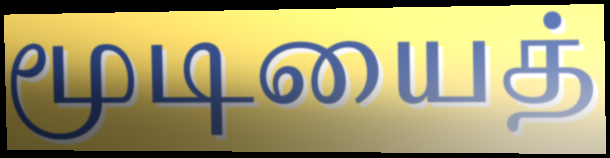
மூடியைத்